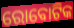
ରୋବୋଟିକ